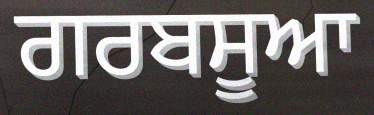
ਗਰਬਸੂਆ